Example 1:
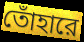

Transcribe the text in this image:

তোঁহারে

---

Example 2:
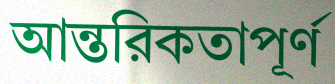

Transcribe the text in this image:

আন্তরিকতাপূর্ণ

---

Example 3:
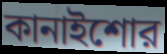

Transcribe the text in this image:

কানাইশোর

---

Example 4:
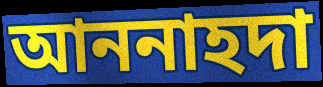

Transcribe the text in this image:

আননাহদা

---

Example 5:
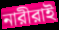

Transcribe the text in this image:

নারীরাই